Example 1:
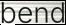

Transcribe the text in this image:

bend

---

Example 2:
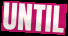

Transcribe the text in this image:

UNTIL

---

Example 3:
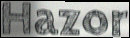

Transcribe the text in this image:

Hazor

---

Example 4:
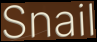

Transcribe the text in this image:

Snail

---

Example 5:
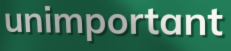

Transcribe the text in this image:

unimportant